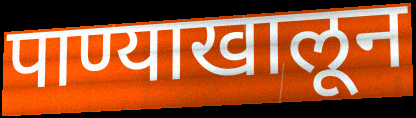
पाण्याखालून